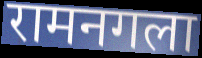
रामनगला